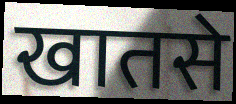
खातसे